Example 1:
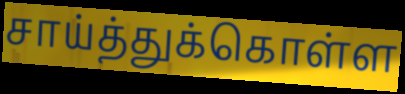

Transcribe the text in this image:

சாய்த்துக்கொள்ள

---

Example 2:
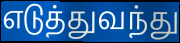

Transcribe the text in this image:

எடுத்துவந்து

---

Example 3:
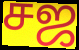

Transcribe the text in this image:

சஜ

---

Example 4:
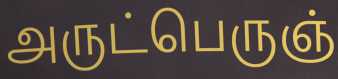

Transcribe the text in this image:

அருட்பெருஞ்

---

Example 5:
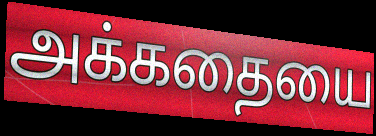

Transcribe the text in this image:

அக்கதையை